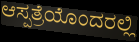
ಆಸ್ಪತ್ರೆಯೊಂದರಲ್ಲಿ